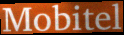
Mobitel